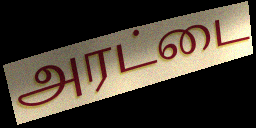
அரட்டை